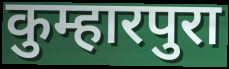
कुम्हारपुरा